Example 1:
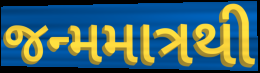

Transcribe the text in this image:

જન્મમાત્રથી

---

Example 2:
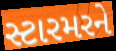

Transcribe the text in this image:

સ્ટારમરને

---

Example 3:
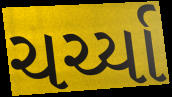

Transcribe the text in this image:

ચર્ચ્યા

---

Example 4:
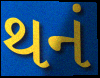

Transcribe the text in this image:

થનં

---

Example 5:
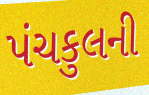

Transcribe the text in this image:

પંચકુલની